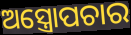
ଅସ୍ତ୍ରୋପଚାର